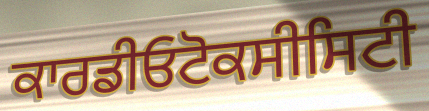
ਕਾਰਡੀਓਟੋਕਸੀਸਿਟੀ